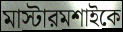
মাস্টারমশাইকে